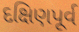
દક્ષિણપૂર્વ